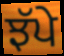
ਝੱਪੇ